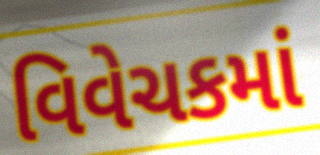
વિવેચકમાં